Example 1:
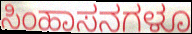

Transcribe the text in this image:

ಸಿಂಹಾಸನಗಳೂ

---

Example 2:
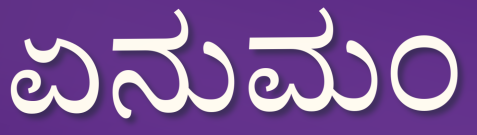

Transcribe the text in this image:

ಏನುಮಂ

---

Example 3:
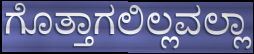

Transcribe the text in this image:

ಗೊತ್ತಾಗಲಿಲ್ಲವಲ್ಲಾ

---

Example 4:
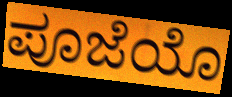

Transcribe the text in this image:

ಪೂಜೆಯೊ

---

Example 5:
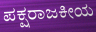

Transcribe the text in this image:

ಪಕ್ಷರಾಜಕೀಯ